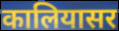
कालियासर